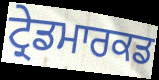
ਟ੍ਰੇਡਮਾਰਕਡ